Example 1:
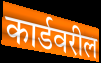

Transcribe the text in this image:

कार्डवरील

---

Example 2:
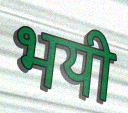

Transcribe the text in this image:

भयी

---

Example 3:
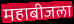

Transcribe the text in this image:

महाबीजला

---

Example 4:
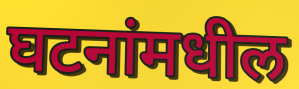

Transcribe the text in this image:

घटनांमधील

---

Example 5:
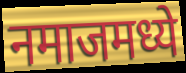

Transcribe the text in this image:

नमाजमध्ये